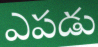
ఎపడు